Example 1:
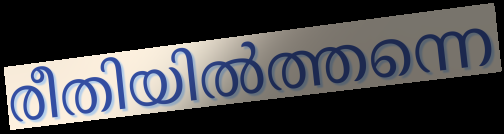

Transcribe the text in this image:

രീതിയിൽത്തന്നെ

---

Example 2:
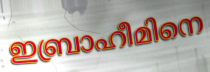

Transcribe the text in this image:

ഇബ്രാഹീമിനെ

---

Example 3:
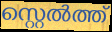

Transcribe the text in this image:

സ്റ്റെൽത്ത്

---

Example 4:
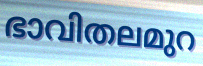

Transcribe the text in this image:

ഭാവിതലമുറ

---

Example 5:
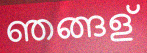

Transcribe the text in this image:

ഞങ്ങള്